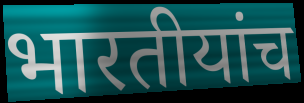
भारतीयांच